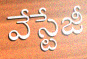
వేస్టేజీ